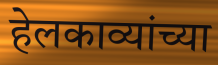
हेलकाव्यांच्या